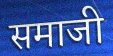
समाजी